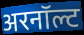
अरनॉल्ट